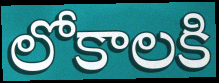
లోకాలకి